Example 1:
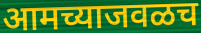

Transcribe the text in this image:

आमच्याजवळच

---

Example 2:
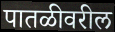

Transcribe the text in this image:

पातळीवरील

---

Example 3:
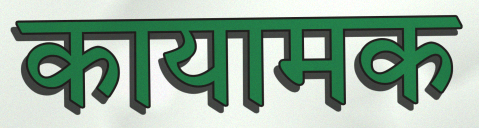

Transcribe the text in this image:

कायामक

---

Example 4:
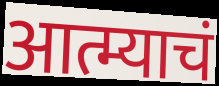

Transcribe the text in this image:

आत्म्याचं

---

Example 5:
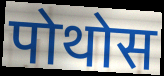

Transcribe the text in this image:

पोथोस